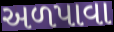
અળપાવા